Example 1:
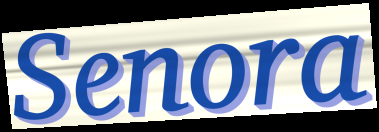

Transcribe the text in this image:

Senora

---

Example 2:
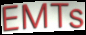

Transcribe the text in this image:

EMTs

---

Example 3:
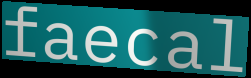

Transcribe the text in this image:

faecal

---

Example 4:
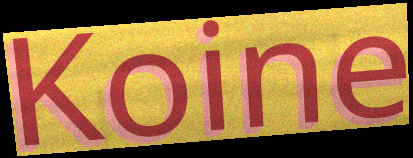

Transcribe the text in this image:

Koine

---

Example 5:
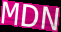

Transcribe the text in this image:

MDN